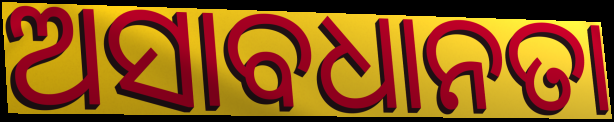
ଅସାବଧାନତା